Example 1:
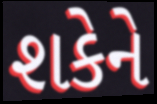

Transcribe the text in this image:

શકેને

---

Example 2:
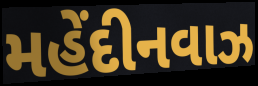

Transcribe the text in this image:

મહેંદીનવાઝ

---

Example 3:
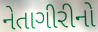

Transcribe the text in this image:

નેતાગીરીનો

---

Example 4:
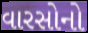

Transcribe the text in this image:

વારસોનો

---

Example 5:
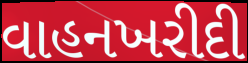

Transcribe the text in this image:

વાહનખરીદી